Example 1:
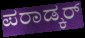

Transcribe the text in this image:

ಪರಾಡ್ಕರ್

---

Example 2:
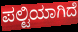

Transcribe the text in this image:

ಪಲ್ಟಿಯಾಗಿದೆ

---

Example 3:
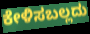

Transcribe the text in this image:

ಕೇಳಿಸಬಲ್ಲದು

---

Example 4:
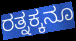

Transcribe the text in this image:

ರತ್ನಕ್ಕನೂ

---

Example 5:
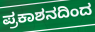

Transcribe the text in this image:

ಪ್ರಕಾಶನದಿಂದ